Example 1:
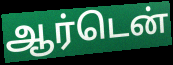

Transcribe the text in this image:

ஆர்டென்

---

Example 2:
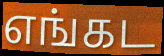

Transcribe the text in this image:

எங்கட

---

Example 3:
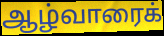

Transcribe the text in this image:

ஆழ்வாரைக்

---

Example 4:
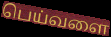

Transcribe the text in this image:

பெய்வளை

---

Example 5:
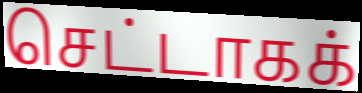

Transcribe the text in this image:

செட்டாகக்